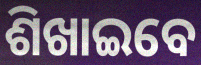
ଶିଖାଇବେ